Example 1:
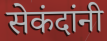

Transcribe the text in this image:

सेकंदांनी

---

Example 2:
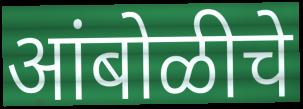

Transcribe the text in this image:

आंबोळीचे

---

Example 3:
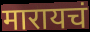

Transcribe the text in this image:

मारायचं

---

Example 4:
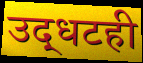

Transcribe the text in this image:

उद्धटही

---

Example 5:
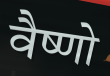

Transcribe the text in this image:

वैष्णो